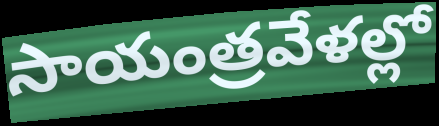
సాయంత్రవేళల్లో